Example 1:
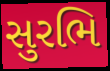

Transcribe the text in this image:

સુરભિ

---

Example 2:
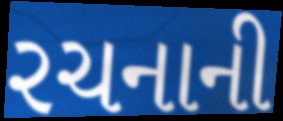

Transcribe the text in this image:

રચનાની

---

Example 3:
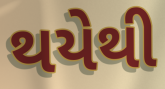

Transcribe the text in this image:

થયેથી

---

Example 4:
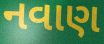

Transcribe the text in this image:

નવાણ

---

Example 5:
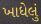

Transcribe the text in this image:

ખાધેલું